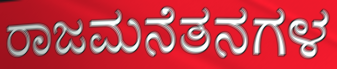
ರಾಜಮನೆತನಗಳ